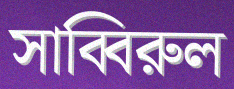
সাব্বিরুল